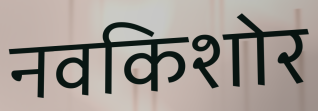
नवकिशोर